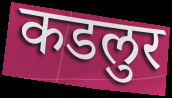
कडलुर